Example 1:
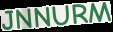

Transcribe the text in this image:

JNNURM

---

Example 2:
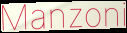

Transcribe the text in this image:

Manzoni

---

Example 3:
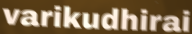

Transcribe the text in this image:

varikudhirai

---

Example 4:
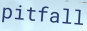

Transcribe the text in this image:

pitfall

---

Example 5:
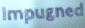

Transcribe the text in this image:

Impugned